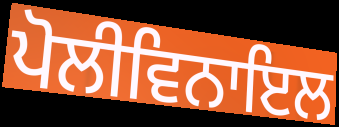
ਪੋਲੀਵਿਨਾਇਲ